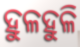
ହୁଳହୁଳି